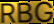
RBG